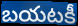
బయటకీ